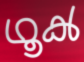
ഥൂൿ